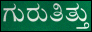
ಗುರುತಿತ್ತು